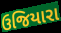
ઉજિયારા